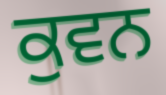
ਕੁਵਨ